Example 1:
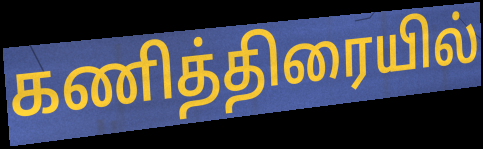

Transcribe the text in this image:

கணித்திரையில்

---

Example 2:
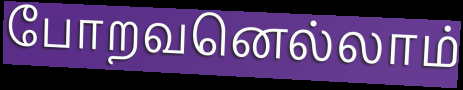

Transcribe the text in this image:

போறவனெல்லாம்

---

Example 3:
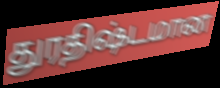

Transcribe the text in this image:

துரதிஷ்டமான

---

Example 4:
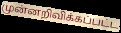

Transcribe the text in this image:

முன்னறிவிக்கப்பட்ட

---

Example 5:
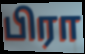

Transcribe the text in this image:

பிரா